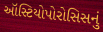
ઑસ્ટિયોપોરોસિસનું